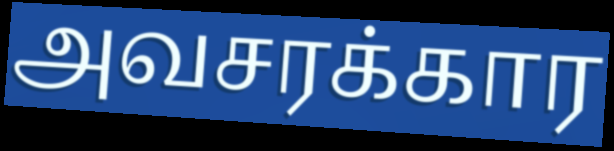
அவசரக்கார